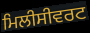
ਮਿਲੀਸੀਵਰਟ